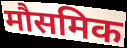
मौसमिक